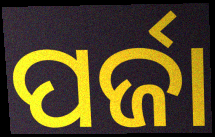
ପର୍ଜା